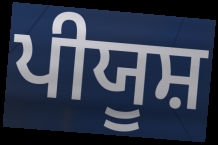
ਪੀਯੂਸ਼